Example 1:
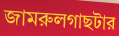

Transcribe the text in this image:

জামরুলগাছটার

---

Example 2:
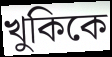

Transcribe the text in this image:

খুকিকে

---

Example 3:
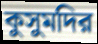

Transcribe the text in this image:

কুসুমদির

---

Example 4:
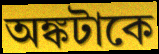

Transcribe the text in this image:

অঙ্কটাকে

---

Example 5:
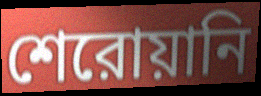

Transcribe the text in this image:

শেরোয়ানি